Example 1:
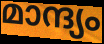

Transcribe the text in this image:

മാന്ദ്യം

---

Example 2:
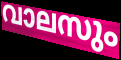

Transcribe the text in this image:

വാലസും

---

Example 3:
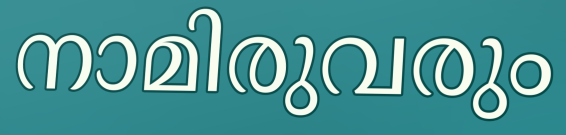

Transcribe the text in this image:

നാമിരുവരും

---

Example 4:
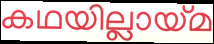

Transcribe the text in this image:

കഥയില്ലായ്മ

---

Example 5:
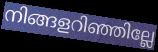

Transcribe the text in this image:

നിങ്ങളറിഞ്ഞില്ലേ